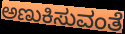
ಅಣುಕಿಸುವಂತೆ